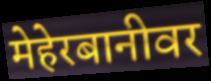
मेहेरबानीवर